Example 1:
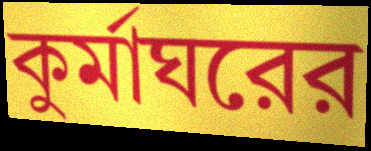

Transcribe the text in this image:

কুর্মাঘরের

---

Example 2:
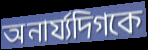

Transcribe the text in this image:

অনার্য্যদিগকে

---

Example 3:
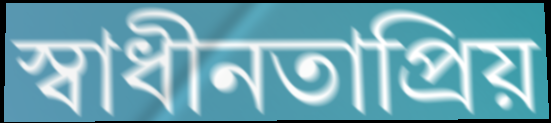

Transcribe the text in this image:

স্বাধীনতাপ্রিয়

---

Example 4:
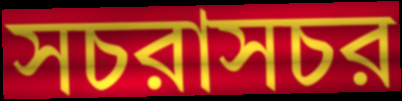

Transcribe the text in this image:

সচরাসচর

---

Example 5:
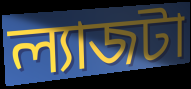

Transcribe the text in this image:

ল্যাজটা